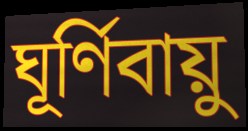
ঘূর্ণিবায়ু